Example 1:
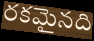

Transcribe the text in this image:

రకమైనది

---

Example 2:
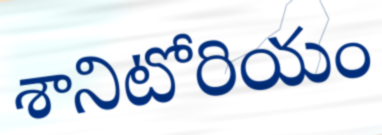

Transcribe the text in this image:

శానిటోరియం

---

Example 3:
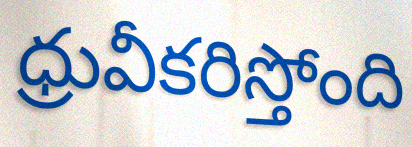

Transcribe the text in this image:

ధ్రువీకరిస్తోంది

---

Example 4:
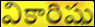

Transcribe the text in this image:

వికారిషు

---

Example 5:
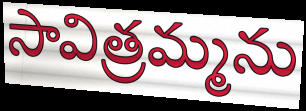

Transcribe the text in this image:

సావిత్రమ్మను